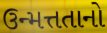
ઉન્મત્તતાનો